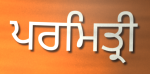
ਪਰਮਿਤ੍ਰੀ